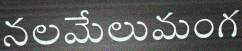
నలమేలుమంగ